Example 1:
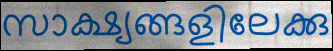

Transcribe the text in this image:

സാക്ഷ്യങ്ങളിലേക്കു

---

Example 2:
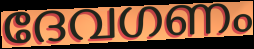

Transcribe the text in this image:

ദേവഗണം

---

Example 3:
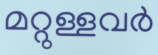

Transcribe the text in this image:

മറ്റുള്ളവർ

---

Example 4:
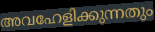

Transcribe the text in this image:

അവഹേളിക്കുന്നതും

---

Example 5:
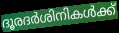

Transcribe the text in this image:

ദൂരദർശിനികൾക്ക്